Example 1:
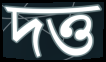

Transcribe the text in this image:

দত্ত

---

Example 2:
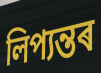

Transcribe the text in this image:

লিপ্যন্তৰ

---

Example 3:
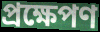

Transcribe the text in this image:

প্ৰক্ষেপণ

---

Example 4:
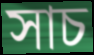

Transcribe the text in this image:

সাচ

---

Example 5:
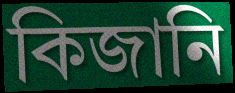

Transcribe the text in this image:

কিজানি